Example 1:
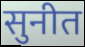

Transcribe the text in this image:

सुनीत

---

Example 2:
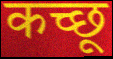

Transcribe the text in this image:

कच्छू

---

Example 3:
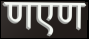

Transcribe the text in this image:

णएण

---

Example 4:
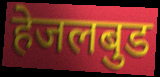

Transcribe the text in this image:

हेजलबुड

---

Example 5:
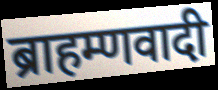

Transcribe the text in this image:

ब्राहम्णवादी